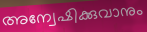
അന്വേഷിക്കുവാനും